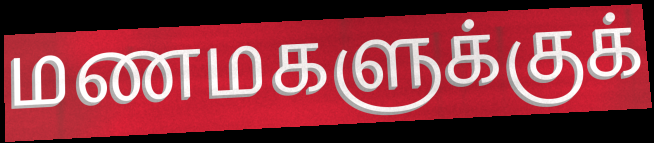
மணமகளுக்குக்